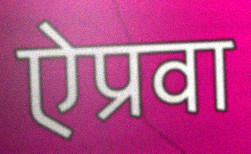
ऐप्रवा